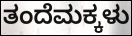
ತಂದೆಮಕ್ಕಳು